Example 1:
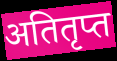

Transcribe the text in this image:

अतितृप्त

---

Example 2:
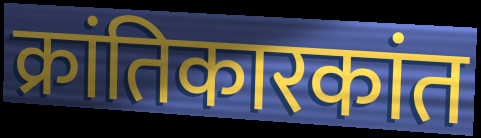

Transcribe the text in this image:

क्रांतिकारकांत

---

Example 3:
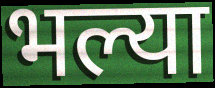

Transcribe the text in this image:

भल्या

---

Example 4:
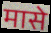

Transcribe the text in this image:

मासे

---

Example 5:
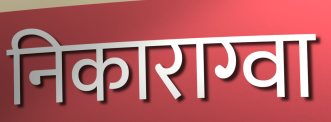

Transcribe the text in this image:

निकाराग्वा